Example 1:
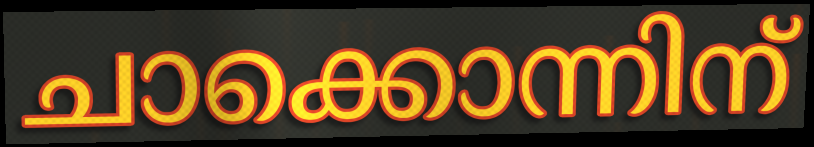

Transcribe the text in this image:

ചാക്കൊന്നിന്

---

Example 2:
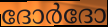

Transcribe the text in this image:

ദോർദോ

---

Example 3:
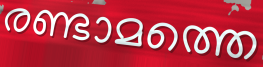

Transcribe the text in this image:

രണ്ടാമത്തെ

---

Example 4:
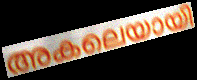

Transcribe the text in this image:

അകലെയായി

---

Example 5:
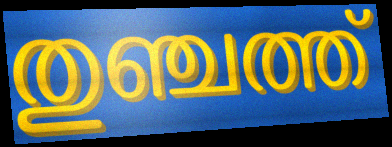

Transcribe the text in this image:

തുഞ്ചത്ത്